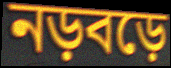
নড়বড়ে